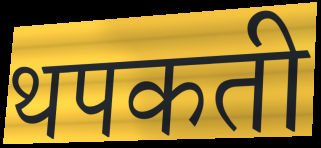
थपकती